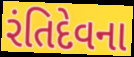
રંતિદેવના